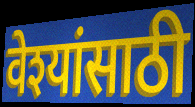
वेश्यांसाठी